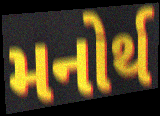
મનોર્થ